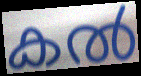
കൽ